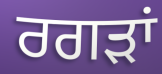
ਰਗੜਾਂ